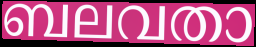
ബലവതാ